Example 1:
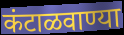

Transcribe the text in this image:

कंटाळवाण्या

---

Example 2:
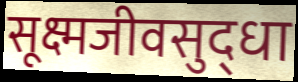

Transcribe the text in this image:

सूक्ष्मजीवसुद्धा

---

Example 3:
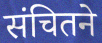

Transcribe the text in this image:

संचितने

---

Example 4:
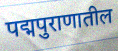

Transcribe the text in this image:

पद्मपुराणातील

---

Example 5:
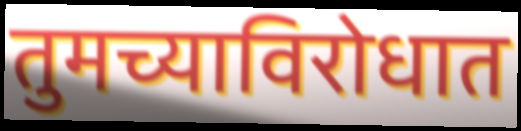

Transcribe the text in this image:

तुमच्याविरोधात